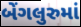
બેંગલુરુમાં